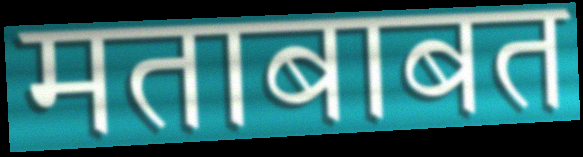
मताबाबत